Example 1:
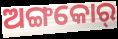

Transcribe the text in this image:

ଅଙ୍ଗକୋର୍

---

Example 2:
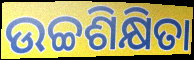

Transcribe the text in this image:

ଉଚ୍ଚଶିକ୍ଷିତା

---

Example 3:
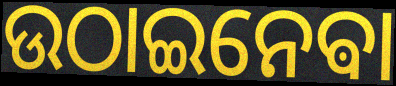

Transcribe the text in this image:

ଉଠାଇନେଵା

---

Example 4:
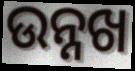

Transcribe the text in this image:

ଉନ୍ନଖ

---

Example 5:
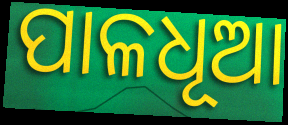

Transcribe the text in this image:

ପାଳଧୂଆ